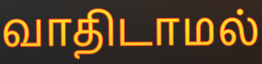
வாதிடாமல்